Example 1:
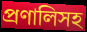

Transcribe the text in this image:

প্রণালিসহ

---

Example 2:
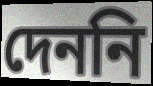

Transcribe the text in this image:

দেননি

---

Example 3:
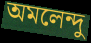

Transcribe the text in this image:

অমলেন্দু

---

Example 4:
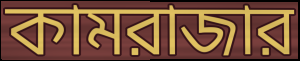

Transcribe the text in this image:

কামরাজার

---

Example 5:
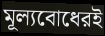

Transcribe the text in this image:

মূল্যবোধেরই